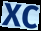
xc